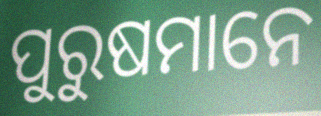
ପୁରୁଷମାନେ